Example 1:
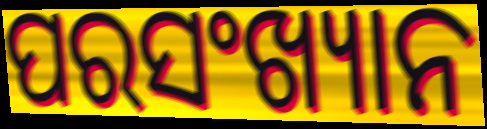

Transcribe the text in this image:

ପରସଂଖ୍ୟାନ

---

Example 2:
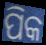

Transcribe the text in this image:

ପିକ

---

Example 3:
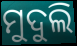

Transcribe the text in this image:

ମୁଦୁଲି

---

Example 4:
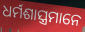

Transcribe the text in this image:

ଧର୍ମଶାସ୍ତ୍ରମାନେ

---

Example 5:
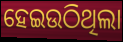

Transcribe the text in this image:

ହେଇଉଠିଥିଲା